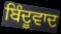
ਬਿੰਦੂਵਾਦ